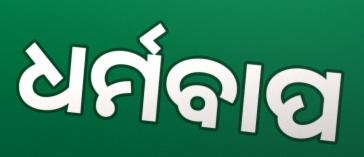
ଧର୍ମବାପ